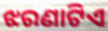
ଝରଣାଟିଏ